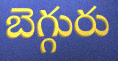
బెగ్గురు